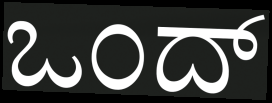
ಒಂದ್